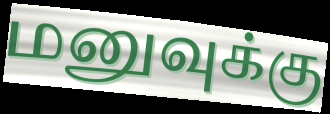
மனுவுக்கு